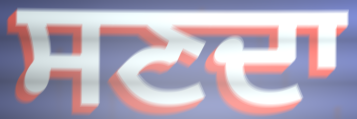
ਸਣਦਾ